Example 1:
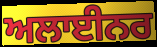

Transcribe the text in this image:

ਅਲਾਈਨਰ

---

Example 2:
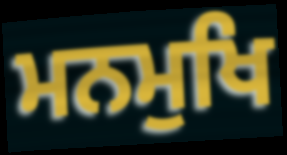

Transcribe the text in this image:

ਮਨਮੁਖਿ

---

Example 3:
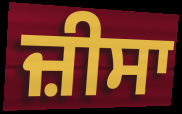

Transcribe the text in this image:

ਜ਼ੀਸਾ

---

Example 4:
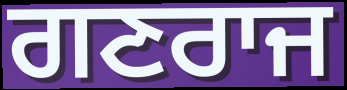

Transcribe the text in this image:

ਗਣਰਾਜ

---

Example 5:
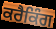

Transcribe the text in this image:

ਕਰੈਕਿੰਗ